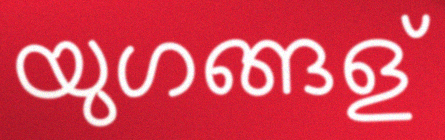
യുഗങ്ങള്